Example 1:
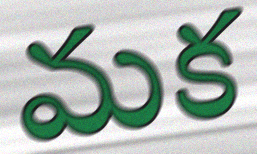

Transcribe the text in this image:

మక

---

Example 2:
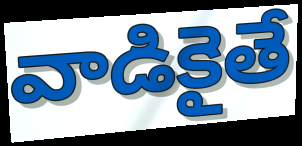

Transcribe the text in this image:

వాడికైతే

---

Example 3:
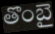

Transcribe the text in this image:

తొంబై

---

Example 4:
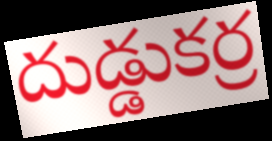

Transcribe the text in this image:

దుడ్డుకర్ర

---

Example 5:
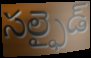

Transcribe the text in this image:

సల్ఫైడ్